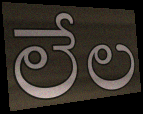
లేల